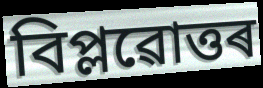
বিপ্লৱোত্তৰ